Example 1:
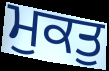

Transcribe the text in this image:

ਮੁਕਤੁ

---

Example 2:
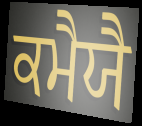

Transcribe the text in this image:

ਕਮੈਯੈ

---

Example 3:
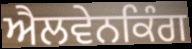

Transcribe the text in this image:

ਐਲਵੇਨਕਿੰਗ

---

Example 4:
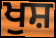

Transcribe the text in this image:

ਖੁਸ਼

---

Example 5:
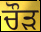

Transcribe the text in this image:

ਚੌੜ